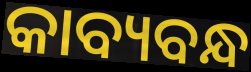
କାବ୍ୟବନ୍ଧ